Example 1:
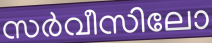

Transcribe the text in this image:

സർവീസിലോ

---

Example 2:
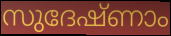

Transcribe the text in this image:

സുദേഷ്ണാം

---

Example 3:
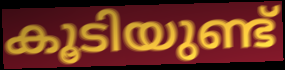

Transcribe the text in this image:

കൂടിയുണ്ട്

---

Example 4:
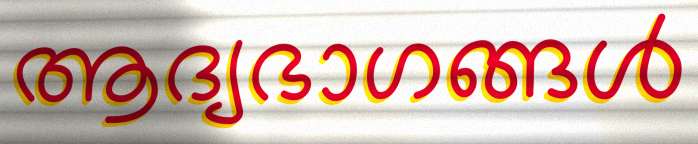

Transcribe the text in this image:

ആദ്യഭാഗങ്ങൾ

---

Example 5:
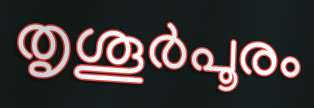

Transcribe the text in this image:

തൃശൂർപൂരം